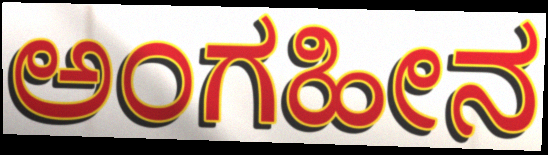
ಅಂಗಹೀನ